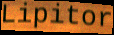
Lipitor